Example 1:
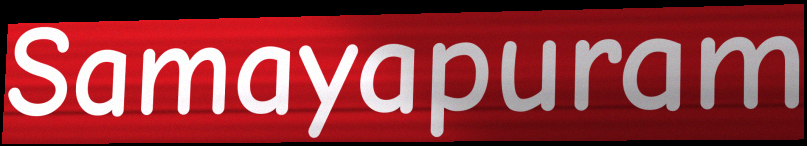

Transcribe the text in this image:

Samayapuram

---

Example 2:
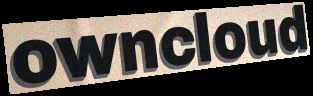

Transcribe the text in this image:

owncloud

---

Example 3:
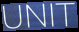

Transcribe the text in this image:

UNIT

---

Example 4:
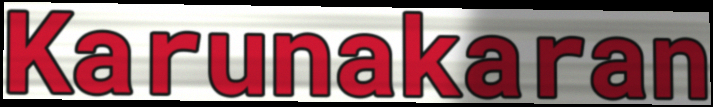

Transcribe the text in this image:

Karunakaran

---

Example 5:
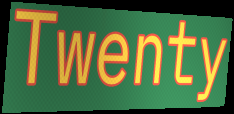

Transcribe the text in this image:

Twenty